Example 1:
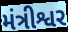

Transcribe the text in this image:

મંત્રીશ્વર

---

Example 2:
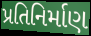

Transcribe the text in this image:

પ્રતિનિર્માણ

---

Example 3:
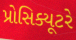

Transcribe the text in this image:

પ્રોસિક્યૂટરે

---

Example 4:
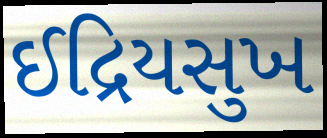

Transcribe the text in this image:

ઈદ્રિયસુખ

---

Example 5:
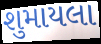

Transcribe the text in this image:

શુમાયલા